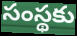
సంస్థకు